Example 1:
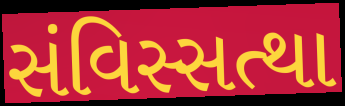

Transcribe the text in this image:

સંવિસ્સત્થા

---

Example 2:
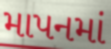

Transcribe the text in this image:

માપનમાં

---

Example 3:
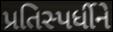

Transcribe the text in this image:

પ્રતિસ્પર્ધીને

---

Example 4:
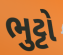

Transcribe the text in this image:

ભુટ્ટો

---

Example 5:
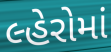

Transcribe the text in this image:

લ્હેરોમાં